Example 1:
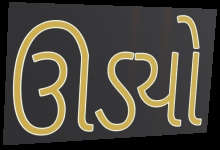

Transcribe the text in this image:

ઊડ્યો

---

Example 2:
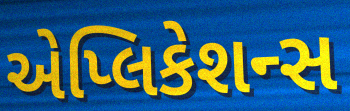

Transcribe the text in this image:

એપ્લિકેશન્સ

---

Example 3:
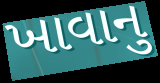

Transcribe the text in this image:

ખાવાનુ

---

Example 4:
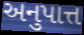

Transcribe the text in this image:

અનુપાત્ત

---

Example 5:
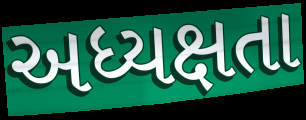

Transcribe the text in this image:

અધ્યક્ષતા